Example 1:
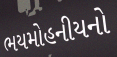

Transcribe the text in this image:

ભયમોહનીયનો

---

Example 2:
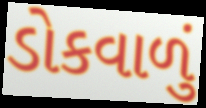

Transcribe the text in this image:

ડોકવાળું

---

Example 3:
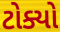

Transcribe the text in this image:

ટોક્યો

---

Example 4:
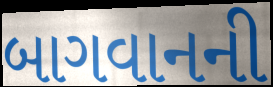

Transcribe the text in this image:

બાગવાનની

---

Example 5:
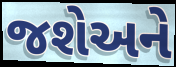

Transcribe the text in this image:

જશેઅને